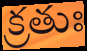
క్రతుః